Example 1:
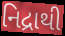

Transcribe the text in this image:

નિદ્રાથી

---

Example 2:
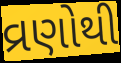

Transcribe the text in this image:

વ્રણોથી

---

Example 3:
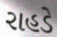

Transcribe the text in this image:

રાહડે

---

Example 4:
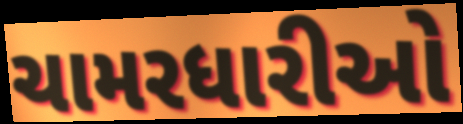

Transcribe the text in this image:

ચામરધારીઓ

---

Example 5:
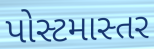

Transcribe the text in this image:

પોસ્ટમાસ્તર